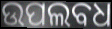
ଉପଲବଧ